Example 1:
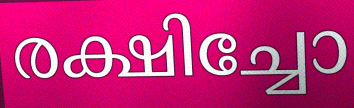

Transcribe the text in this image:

രക്ഷിച്ചോ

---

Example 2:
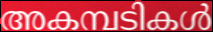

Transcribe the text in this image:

അകമ്പടികൾ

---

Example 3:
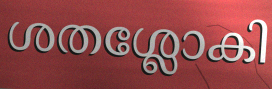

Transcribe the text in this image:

ശതശ്ലോകി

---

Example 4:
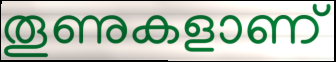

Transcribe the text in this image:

തൂണുകളാണ്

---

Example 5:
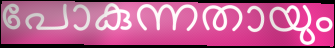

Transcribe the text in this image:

പോകുന്നതായും